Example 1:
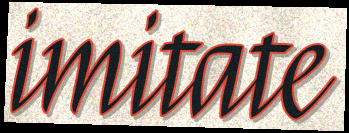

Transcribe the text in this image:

imitate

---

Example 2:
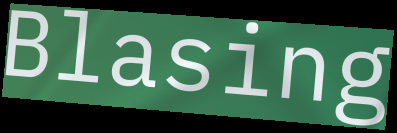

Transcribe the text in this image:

Blasing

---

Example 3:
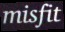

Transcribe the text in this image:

misfit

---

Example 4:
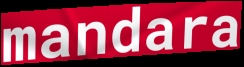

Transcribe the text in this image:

mandara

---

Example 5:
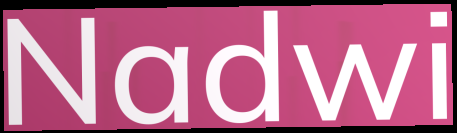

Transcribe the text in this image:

Nadwi